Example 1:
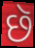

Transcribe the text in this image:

છૅ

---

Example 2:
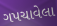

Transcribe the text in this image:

ગપચાવેલા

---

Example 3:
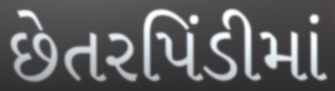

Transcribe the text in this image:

છેતરપિંડીમાં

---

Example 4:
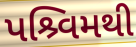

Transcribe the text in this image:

પશ્ર્વિમથી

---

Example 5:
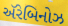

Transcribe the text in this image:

ઍરેબિનોઝ